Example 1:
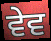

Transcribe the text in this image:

ਵੇਵ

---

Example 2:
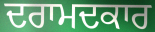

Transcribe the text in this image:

ਦਰਾਮਦਕਾਰ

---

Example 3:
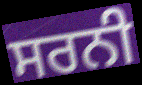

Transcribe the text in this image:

ਸਰਨੀ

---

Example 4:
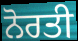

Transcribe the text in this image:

ਨੋਰਤੀ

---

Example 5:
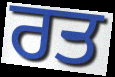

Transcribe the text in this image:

ਰਤ